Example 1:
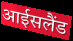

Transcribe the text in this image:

आईसलैंड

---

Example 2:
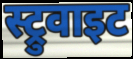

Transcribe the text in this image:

स्ट्रुवाइट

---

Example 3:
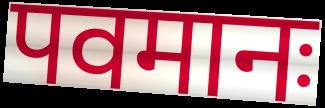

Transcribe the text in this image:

पवमानः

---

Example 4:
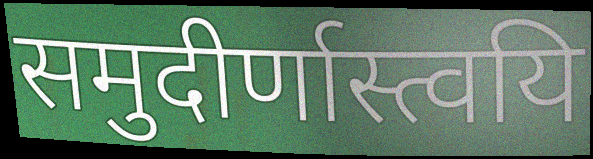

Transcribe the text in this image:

समुदीर्णास्त्वयि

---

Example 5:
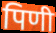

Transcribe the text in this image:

पिणी